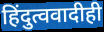
हिंदुत्ववादीही